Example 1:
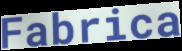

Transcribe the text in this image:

Fabrica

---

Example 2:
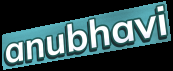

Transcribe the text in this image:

anubhavi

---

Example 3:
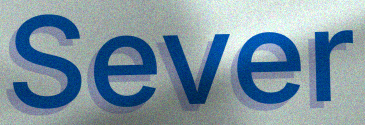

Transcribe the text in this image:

Sever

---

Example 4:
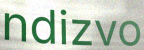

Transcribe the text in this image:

ndizvo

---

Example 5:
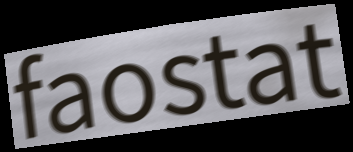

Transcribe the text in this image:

faostat